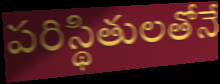
పరిస్థితులతోనే